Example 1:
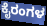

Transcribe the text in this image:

ಕೈರಂಗಳ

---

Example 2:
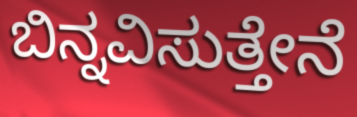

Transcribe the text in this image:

ಬಿನ್ನವಿಸುತ್ತೇನೆ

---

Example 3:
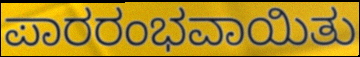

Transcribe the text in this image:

ಪಾರರಂಭವಾಯಿತು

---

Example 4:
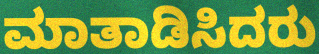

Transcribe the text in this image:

ಮಾತಾಡಿಸಿದರು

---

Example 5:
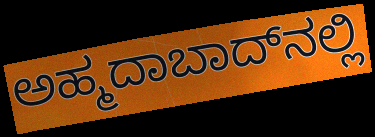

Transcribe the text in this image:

ಅಹ್ಮದಾಬಾದ್‍ನಲ್ಲಿ